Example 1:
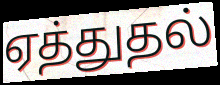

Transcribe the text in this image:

ஏத்துதல்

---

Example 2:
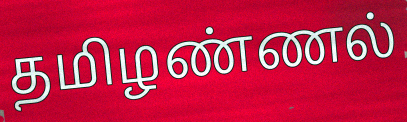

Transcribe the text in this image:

தமிழண்ணல்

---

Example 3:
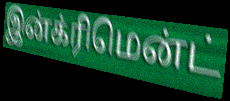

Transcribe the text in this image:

இன்க்ரிமென்ட்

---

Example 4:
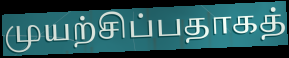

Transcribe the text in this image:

முயற்சிப்பதாகத்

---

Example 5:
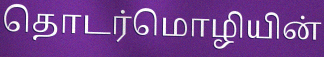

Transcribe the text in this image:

தொடர்மொழியின்